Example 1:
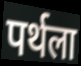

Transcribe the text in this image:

पर्थला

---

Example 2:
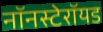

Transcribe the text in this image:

नॉनस्टेरॉयड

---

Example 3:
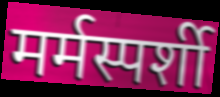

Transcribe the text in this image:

मर्मस्पर्शी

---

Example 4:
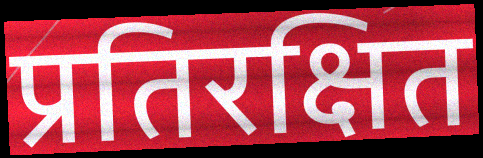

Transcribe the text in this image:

प्रतिरक्षित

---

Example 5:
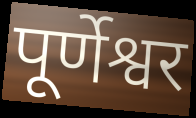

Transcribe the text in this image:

पूर्णेश्वर